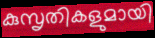
കുസൃതികളുമായി